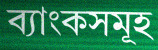
ব্যাংকসমূহ